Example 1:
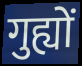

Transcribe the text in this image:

गुह्यों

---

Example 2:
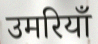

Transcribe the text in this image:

उमरियाँ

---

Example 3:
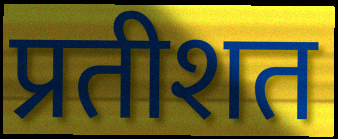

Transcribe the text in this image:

प्रतीशत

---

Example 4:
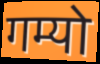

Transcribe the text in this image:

गम्यो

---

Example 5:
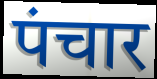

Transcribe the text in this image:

पंचार